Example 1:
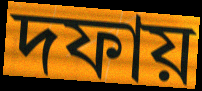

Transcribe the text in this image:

দফায়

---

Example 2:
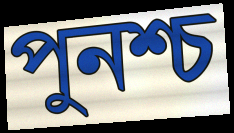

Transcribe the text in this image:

পুনশ্চ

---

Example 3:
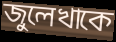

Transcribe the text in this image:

জুলেখাকে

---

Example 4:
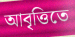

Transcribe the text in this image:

আবৃত্তিতে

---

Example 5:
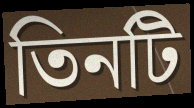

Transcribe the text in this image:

তিনটি